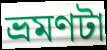
ভ্রমণটা